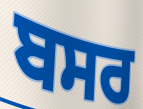
ਬਸਰ